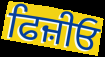
ਫਿਜ਼ੀਓ